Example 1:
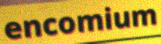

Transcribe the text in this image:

encomium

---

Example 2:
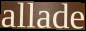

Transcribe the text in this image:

allade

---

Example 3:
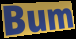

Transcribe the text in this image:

Bum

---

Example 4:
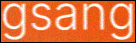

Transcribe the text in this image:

gsang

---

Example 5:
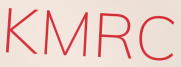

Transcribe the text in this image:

KMRC